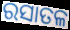
ରସାତଳ